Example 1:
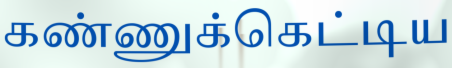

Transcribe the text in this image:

கண்ணுக்கெட்டிய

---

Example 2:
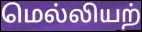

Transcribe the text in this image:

மெல்லியற்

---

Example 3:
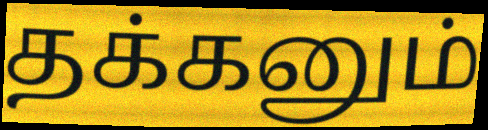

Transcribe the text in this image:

தக்கனும்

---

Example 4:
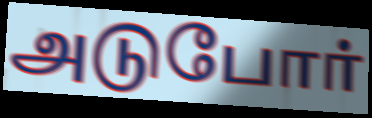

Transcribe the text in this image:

அடுபோர்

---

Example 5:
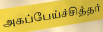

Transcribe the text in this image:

அகப்பேய்ச்சித்தர்